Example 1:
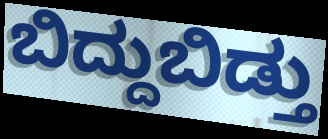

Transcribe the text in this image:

ಬಿದ್ದುಬಿಡ್ತು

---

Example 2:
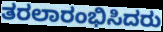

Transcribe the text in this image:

ತರಲಾರಂಭಿಸಿದರು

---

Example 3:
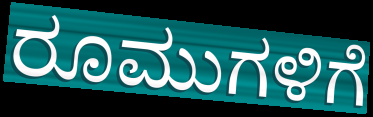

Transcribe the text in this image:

ರೂಮುಗಳಿಗೆ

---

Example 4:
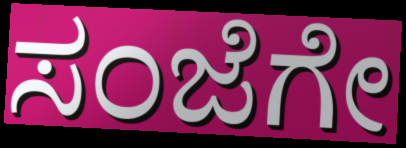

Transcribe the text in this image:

ಸಂಜೆಗೇ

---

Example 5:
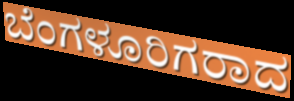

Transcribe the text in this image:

ಬೆಂಗಳೂರಿಗರಾದ